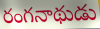
రంగనాథుడు